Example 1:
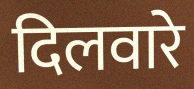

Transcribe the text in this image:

दिलवारे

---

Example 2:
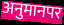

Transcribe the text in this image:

अनुमानपर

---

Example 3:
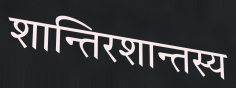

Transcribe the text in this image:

शान्तिरशान्तस्य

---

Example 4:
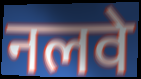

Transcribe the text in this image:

नलवे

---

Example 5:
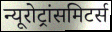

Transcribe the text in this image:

न्यूरोट्रांसमिटर्स